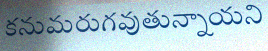
కనుమరుగవుతున్నాయని